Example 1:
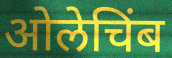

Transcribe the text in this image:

ओलेचिंब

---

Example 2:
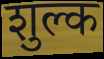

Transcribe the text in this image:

शुल्क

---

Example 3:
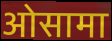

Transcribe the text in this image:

ओसामा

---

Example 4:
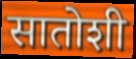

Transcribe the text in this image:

सातोशी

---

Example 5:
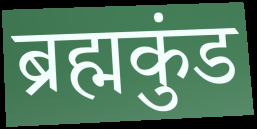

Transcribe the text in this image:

ब्रह्मकुंड